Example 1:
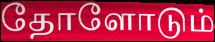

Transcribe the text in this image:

தோளோடும்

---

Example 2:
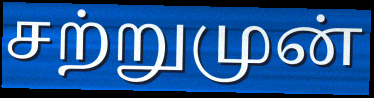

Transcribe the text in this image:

சற்றுமுன்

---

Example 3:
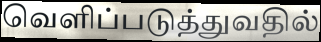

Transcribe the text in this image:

வெளிப்படுத்துவதில்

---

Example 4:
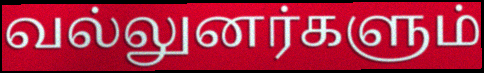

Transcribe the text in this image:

வல்லுனர்களும்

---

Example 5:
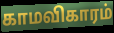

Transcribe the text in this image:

காமவிகாரம்